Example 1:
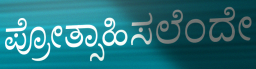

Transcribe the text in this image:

ಪ್ರೋತ್ಸಾಹಿಸಲೆಂದೇ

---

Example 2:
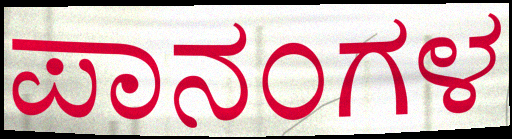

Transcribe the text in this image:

ಪಾನಂಗಳ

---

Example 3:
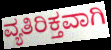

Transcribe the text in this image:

ವ್ಯತಿರಿಕ್ತವಾಗಿ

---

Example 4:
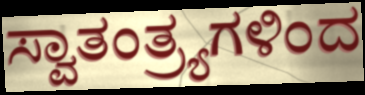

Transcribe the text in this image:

ಸ್ವಾತಂತ್ರ್ಯಗಳಿಂದ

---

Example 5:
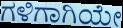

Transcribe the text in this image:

ಗಳಿಗಾಗಿಯೇ